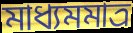
মাধ্যমমাত্র